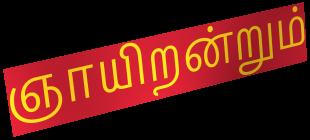
ஞாயிறன்றும்